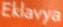
Eklavya